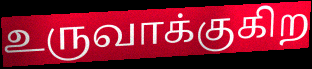
உருவாக்குகிற